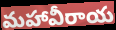
మహావీరాయ